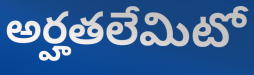
అర్హతలేమిటో